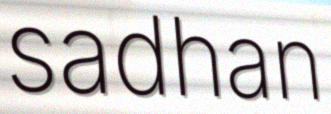
sadhan